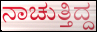
ನಾಚುತ್ತಿದ್ದ